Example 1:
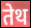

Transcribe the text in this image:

तेथ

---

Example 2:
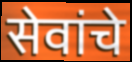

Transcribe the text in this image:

सेवांचे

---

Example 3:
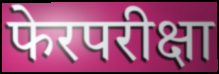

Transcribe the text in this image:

फेरपरीक्षा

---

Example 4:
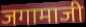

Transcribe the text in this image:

जगामाजी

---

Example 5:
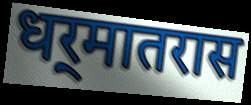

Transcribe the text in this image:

धर्मातरास